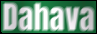
Dahava